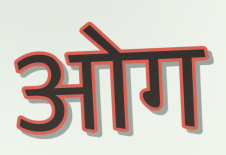
ओग